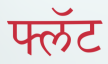
फ्लॅट